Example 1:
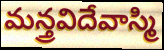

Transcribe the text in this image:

మన్త్రవిదేవాస్మి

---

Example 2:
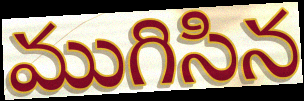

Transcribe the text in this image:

ముగిసిన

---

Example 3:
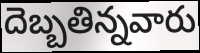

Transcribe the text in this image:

దెబ్బతిన్నవారు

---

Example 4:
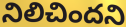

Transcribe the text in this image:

నిలిచిందని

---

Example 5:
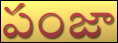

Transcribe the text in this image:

పంజా